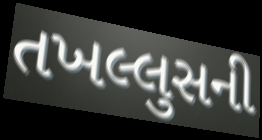
તખલ્લુસની